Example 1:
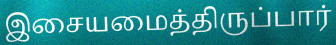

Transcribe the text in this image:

இசையமைத்திருப்பார்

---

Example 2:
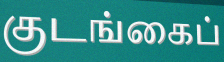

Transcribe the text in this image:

குடங்கைப்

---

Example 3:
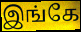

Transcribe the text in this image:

இங்கே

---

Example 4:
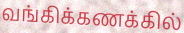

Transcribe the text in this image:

வங்கிக்கணக்கில்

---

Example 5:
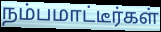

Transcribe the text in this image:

நம்பமாட்டீர்கள்